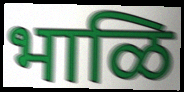
भाळि